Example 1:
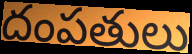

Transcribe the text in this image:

దంపతులు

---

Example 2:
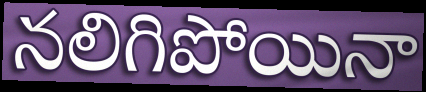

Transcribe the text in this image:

నలిగిపోయినా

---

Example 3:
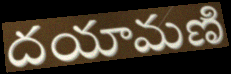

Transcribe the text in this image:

దయామణి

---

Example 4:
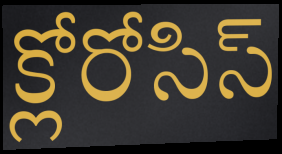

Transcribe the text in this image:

క్లోరోసిస్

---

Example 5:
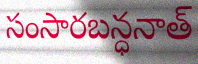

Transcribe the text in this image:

సంసారబన్ధనాత్